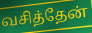
வசித்தேன்